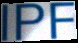
IPF